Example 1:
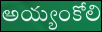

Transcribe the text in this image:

అయ్యంకోలి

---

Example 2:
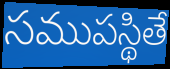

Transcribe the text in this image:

సముపస్థితే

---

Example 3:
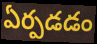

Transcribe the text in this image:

ఏర్పడడం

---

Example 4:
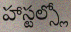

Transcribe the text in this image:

హాస్టల్స్లో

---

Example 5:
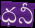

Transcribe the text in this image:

ధనీ